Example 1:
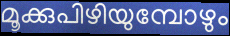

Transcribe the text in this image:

മൂക്കുപിഴിയുമ്പോഴും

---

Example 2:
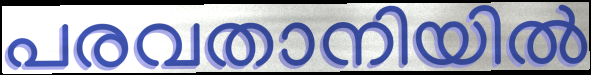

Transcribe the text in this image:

പരവതാനിയിൽ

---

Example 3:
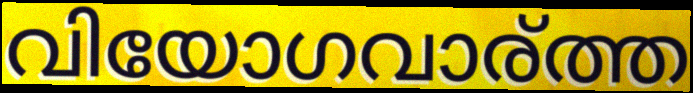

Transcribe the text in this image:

വിയോഗവാര്ത്ത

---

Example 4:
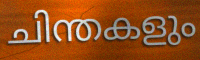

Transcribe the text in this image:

ചിന്തകളും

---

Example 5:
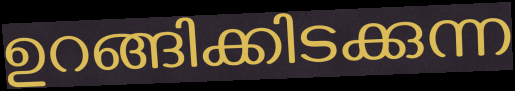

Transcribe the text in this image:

ഉറങ്ങിക്കിടക്കുന്ന